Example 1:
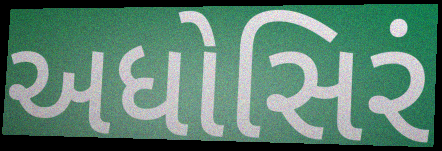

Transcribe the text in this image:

અધોસિરં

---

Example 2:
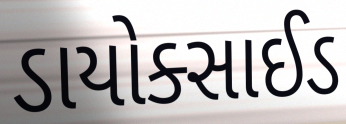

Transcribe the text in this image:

ડાયોક્સાઈડ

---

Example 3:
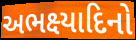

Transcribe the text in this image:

અભક્ષ્યાદિનો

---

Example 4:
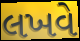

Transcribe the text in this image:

લખવે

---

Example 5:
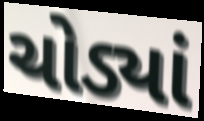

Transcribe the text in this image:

ચોડ્યાં